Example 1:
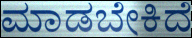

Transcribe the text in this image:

ಮಾಡಬೇಕಿದೆ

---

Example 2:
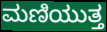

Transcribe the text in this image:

ಮಣಿಯುತ್ತ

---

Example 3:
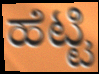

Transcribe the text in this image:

ಹೆಟ್ಟಿ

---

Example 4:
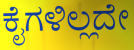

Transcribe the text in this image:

ಕೈಗಳಿಲ್ಲದೇ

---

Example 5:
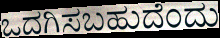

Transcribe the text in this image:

ಒದಗಿಸಬಹುದೆಂದು